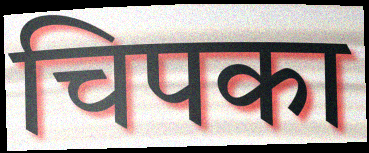
चिपका